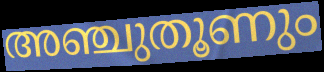
അഞ്ചുതൂണും